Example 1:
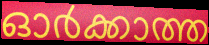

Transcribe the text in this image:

ഓർക്കാത്ത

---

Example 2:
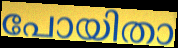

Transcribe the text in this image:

പോയിതാ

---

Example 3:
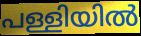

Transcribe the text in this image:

പള്ളിയിൽ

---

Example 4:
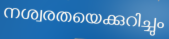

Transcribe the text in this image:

നശ്വരതയെക്കുറിച്ചും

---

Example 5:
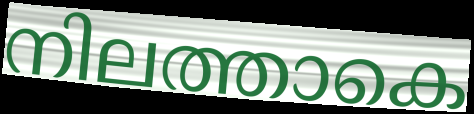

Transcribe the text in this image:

നിലത്താകെ